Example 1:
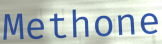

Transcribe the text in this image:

Methone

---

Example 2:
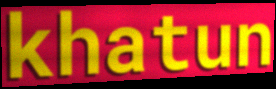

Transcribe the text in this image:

khatun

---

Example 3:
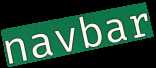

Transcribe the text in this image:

navbar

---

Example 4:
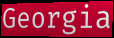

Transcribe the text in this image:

Georgia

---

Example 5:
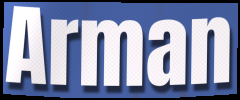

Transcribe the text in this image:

Arman